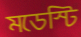
মডেস্টি